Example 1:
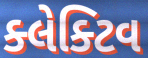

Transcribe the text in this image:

ક્લેક્ટિવ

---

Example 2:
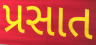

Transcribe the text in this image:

પ્રસાત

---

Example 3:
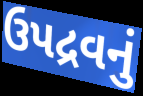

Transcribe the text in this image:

ઉપદ્રવનું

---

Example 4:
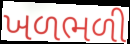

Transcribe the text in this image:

ખળભળી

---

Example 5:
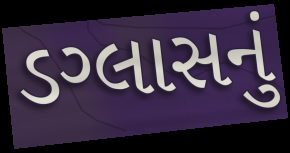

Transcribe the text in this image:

ડગ્લાસનું